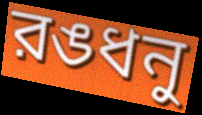
রঙধনু